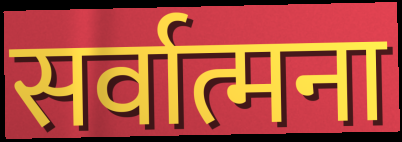
सर्वात्मना